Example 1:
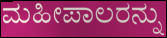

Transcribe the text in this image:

ಮಹೀಪಾಲರನ್ನು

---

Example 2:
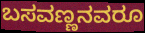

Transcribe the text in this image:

ಬಸವಣ್ಣನವರೂ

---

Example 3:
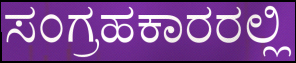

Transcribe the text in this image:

ಸಂಗ್ರಹಕಾರರಲ್ಲಿ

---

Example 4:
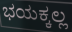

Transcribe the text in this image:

ಭಯಕ್ಕಲ್ಲ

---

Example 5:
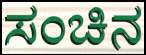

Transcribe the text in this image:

ಸಂಚಿನ